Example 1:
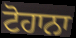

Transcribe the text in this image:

ਟੋਹਾਨਾ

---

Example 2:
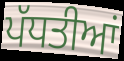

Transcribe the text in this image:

ਪੱਧਤੀਆਂ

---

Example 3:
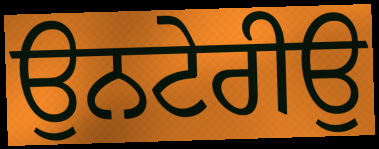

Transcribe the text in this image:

ਉਨਟੇਰੀਉ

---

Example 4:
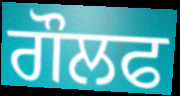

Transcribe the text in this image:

ਗੌਲਫ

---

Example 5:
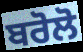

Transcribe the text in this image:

ਬਰੋਲੋ